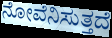
ನೋವೆನಿಸುತ್ತದೆ